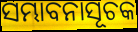
ସମ୍ଭାବନାସୂଚକ